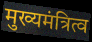
मुख्यमंत्रित्व